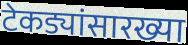
टेकड्यांसारख्या